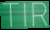
TIR